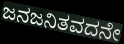
ಜನಜನಿತವದನೇ